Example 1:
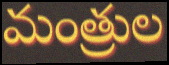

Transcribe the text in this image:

మంత్రుల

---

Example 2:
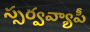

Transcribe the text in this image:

స్సర్వవ్యాపీ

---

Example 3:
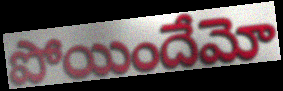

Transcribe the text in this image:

పోయిందేమో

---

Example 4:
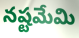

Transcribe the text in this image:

నష్టమేమి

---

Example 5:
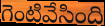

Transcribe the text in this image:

గెంటివేసింది